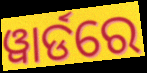
ୱାର୍ଡରେ